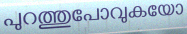
പുറത്തുപോവുകയോ